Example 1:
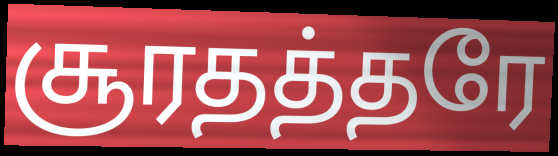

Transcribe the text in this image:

சூரதத்தரே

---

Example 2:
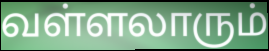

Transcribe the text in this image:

வள்ளலாரும்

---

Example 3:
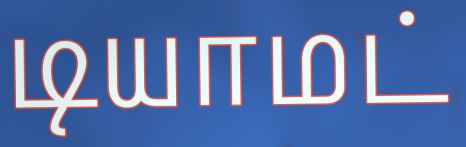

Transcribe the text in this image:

டியாமட்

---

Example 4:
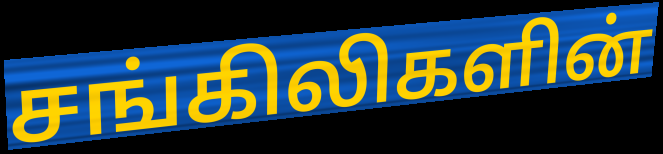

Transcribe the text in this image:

சங்கிலிகளின்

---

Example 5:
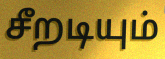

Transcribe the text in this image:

சீறடியும்